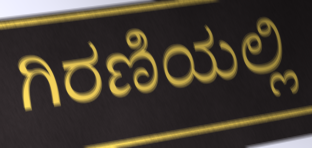
ಗಿರಣಿಯಲ್ಲಿ